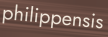
philippensis